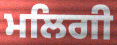
ਮਲਿਗੀ